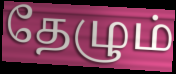
தேழும்